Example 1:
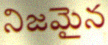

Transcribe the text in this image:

నిజమైన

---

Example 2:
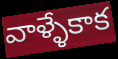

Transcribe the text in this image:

వాళ్ళేకాక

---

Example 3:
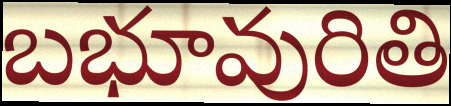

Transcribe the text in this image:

బభూవురితి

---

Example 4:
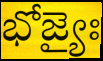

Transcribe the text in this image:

భోజ్యైః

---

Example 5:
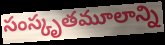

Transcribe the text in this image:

సంస్కృతమూలాన్ని